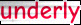
underly